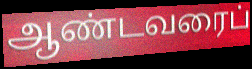
ஆண்டவரைப்